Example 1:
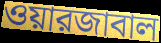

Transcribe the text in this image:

ওয়ারজাবাল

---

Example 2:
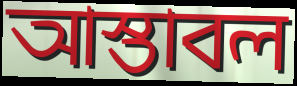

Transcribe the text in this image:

আস্তাবল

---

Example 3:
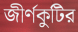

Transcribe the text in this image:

জীর্ণকুটির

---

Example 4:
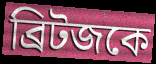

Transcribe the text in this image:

ব্রিটজকে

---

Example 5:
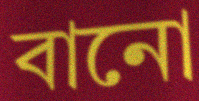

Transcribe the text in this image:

বানো